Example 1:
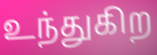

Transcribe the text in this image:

உந்துகிற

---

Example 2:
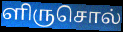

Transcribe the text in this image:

ளிருசொல்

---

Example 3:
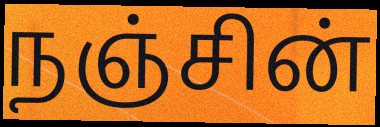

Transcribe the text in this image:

நஞ்சின்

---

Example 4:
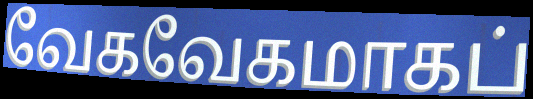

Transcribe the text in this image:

வேகவேகமாகப்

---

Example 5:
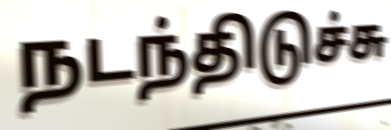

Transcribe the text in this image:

நடந்திடுச்சு